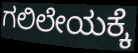
ಗಲಿಲೇಯಕ್ಕೆ